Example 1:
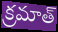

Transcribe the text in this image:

క్రమాత్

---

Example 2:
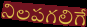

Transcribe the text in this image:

నిలపగలిగే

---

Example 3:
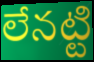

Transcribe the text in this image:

లేనట్టి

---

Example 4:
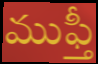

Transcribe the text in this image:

ముఫ్తీ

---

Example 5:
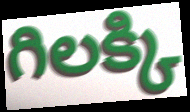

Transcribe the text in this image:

గిలక్కి